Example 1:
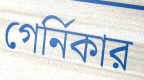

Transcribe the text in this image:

গের্নিকার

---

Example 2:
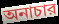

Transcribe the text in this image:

অনাচার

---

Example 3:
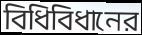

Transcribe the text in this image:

বিধিবিধানের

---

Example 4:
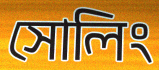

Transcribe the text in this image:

সোলিং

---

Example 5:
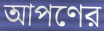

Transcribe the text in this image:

আপণের